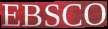
EBSCO